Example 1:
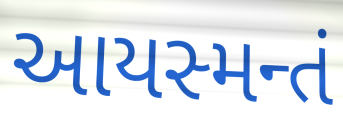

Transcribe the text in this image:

આયસ્મન્તં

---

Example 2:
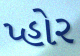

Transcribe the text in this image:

પ્હોર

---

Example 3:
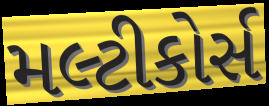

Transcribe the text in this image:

મલ્ટીકોર્સ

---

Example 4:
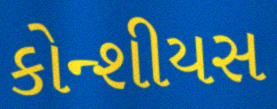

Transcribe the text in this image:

કોન્શીયસ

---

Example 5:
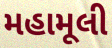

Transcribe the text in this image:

મહામૂલી